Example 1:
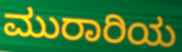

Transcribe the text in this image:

ಮುರಾರಿಯ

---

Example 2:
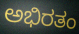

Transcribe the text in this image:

ಅಭಿರತಂ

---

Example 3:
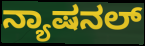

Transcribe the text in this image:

ನ್ಯಾಷನಲ್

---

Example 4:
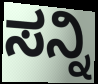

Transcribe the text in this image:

ಸನ್ನಿ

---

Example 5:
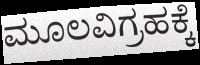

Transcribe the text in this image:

ಮೂಲವಿಗ್ರಹಕ್ಕೆ